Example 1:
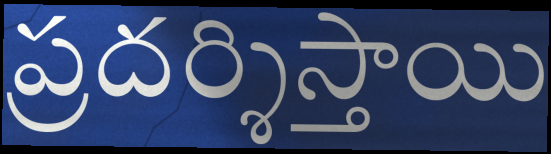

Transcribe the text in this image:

ప్రదర్శిస్తాయి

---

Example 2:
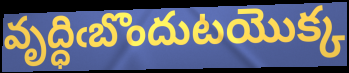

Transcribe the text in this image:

వృద్ధిఁబొందుటయొక్క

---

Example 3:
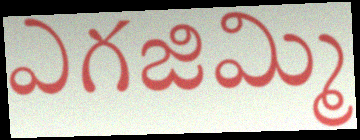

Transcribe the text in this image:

ఎగజిమ్మి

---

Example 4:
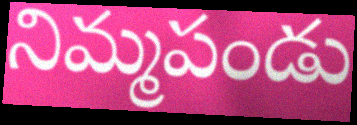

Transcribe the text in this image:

నిమ్మపండు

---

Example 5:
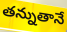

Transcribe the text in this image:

తన్నుతానే